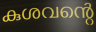
കുശവന്റെ